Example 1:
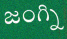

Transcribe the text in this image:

జంగ్ని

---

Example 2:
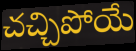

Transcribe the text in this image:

చచ్చిపోయే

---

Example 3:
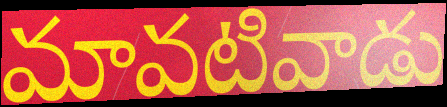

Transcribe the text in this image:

మావటివాడు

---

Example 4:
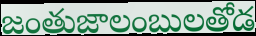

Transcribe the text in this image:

జంతుజాలంబులతోడ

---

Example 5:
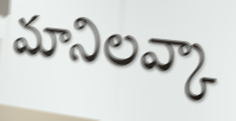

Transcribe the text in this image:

మానిలవ్కా